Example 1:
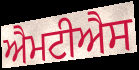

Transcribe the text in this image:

ਐਮਟੀਐਸ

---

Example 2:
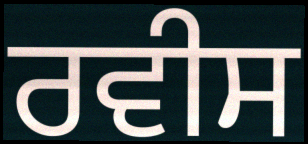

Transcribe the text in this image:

ਰਵੀਸ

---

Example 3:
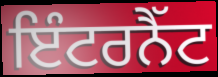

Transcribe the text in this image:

ਇੰਟਰਨੈੱਟ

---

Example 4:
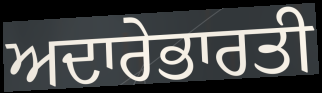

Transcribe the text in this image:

ਅਦਾਰੇਭਾਰਤੀ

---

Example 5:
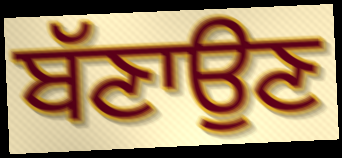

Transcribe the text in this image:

ਬੱਣਾਉਣ